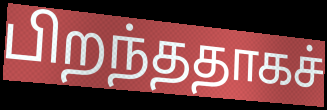
பிறந்ததாகச்